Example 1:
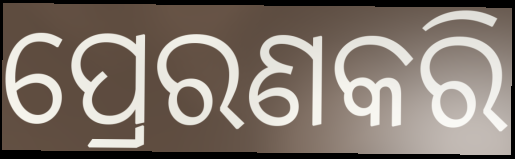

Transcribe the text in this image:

ପ୍ରେରଣକରି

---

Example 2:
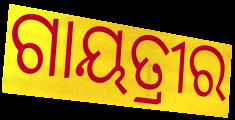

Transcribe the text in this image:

ଗାୟତ୍ରୀର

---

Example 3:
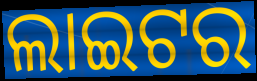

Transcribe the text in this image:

ଲାଇଟର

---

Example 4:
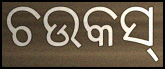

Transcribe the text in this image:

ଚଉକସ୍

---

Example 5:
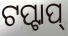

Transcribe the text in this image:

ଟପ୍ଟାପ୍